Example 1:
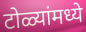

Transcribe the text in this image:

टोळ्यांमध्ये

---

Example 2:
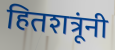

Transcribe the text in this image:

हितशत्रूंनी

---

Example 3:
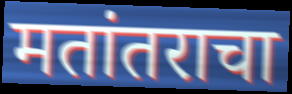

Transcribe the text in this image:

मतांतराचा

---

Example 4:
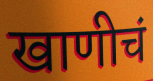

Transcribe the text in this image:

खाणीचं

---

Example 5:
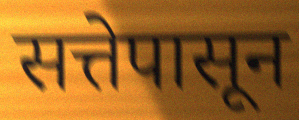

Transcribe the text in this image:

सत्तेपासून